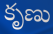
కృణు